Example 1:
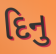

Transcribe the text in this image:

દિનુ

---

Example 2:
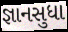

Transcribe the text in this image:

જ્ઞાનસુધા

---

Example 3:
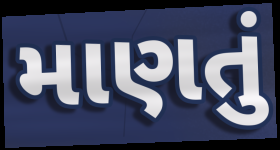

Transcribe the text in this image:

માણતું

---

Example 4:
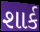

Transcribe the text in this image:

શાર્ક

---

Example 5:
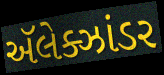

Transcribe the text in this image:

ઍલેક્ઝાંડર